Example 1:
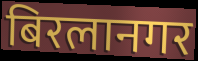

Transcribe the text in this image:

बिरलानगर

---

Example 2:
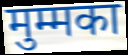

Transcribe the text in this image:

मुम्मका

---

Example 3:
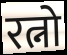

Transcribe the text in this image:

रत्नो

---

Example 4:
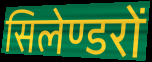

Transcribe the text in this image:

सिलेण्डरों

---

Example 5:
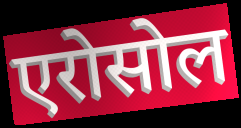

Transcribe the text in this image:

एरोसोल